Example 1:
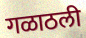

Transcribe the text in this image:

गळाठली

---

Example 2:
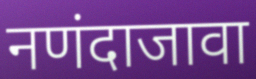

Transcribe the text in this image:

नणंदाजावा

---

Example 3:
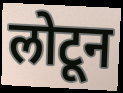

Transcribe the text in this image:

लोटून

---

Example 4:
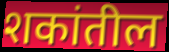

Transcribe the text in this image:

शकांतील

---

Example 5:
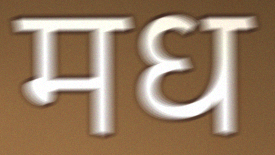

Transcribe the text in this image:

मध